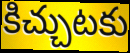
కిచ్చుటకు